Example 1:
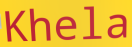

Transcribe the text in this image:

Khela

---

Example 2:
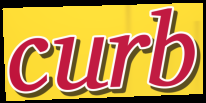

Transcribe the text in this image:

curb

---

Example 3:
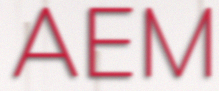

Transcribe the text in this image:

AEM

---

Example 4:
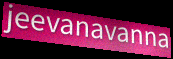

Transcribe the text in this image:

jeevanavanna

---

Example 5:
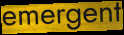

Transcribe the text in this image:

emergent